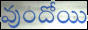
వుందోయి